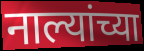
नाल्यांच्या